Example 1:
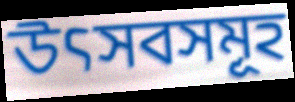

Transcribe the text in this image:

উৎসবসমূহ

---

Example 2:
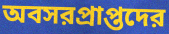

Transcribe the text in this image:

অবসরপ্রাপ্তদের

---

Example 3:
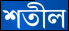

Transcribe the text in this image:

শতীল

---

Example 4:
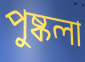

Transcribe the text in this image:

পুষ্কলা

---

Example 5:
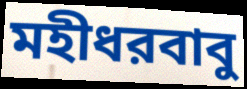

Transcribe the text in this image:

মহীধরবাবু